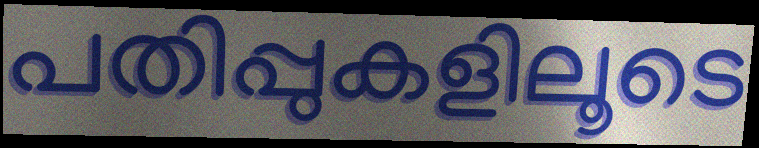
പതിപ്പുകളിലൂടെ